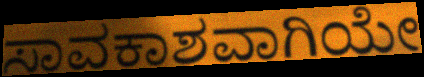
ಸಾವಕಾಶವಾಗಿಯೇ